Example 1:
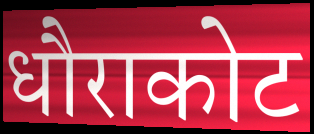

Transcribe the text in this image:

धौराकोट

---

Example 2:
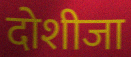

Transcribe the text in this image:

दोशीजा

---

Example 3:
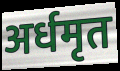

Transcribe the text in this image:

अर्धमृत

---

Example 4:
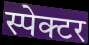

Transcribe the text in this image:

स्पेक्टर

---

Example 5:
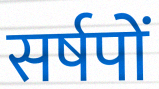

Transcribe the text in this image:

सर्षपों